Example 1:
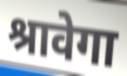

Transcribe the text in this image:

श्रावेगा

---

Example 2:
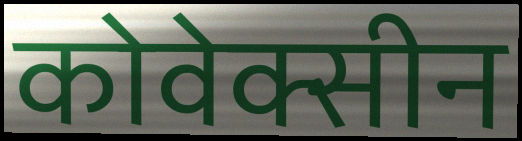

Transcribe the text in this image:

कोवेक्सीन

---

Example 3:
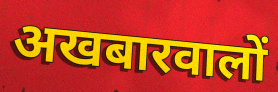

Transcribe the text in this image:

अखबारवालों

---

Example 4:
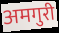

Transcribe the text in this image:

अमगुरी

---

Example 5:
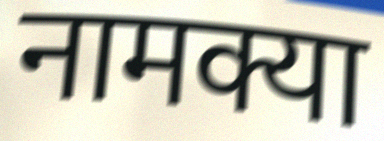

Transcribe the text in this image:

नामक्या